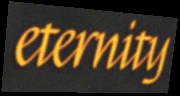
eternity